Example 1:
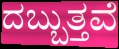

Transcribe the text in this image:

ದಬ್ಬುತ್ತವೆ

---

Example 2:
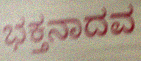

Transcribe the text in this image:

ಭಕ್ತನಾದವ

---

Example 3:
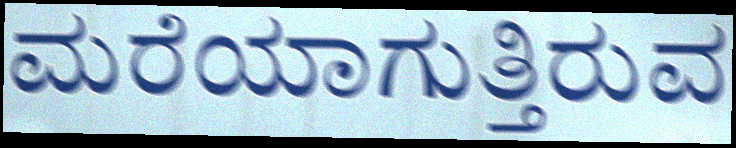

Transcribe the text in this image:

ಮರೆಯಾಗುತ್ತಿರುವ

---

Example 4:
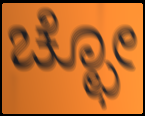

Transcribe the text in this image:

ಚ್ಛೋ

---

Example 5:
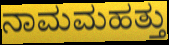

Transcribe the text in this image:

ನಾಮಮಹತ್ತು